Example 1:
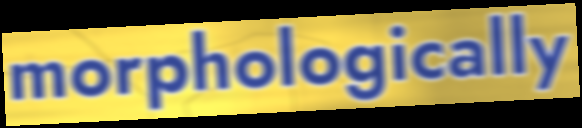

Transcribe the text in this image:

morphologically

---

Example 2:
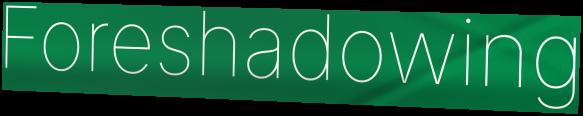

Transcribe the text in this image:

Foreshadowing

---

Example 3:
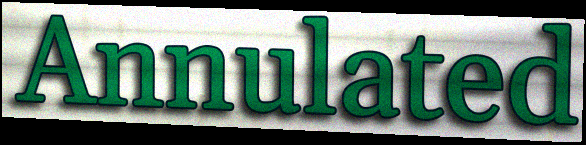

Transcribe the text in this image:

Annulated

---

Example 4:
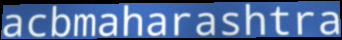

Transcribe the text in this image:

acbmaharashtra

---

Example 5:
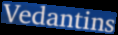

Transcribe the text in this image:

Vedantins